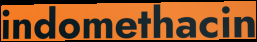
indomethacin